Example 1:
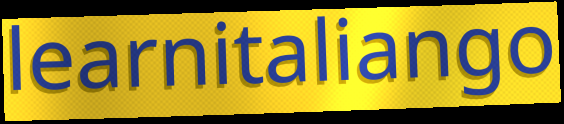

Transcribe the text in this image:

learnitaliango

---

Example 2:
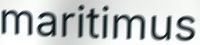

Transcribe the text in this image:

maritimus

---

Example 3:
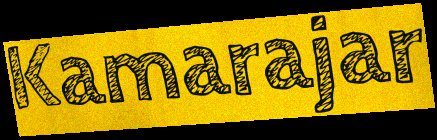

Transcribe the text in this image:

Kamarajar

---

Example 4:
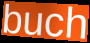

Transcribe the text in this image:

buch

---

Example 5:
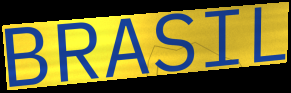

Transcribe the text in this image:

BRASIL